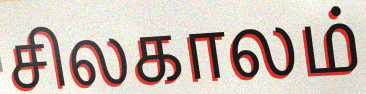
சிலகாலம்